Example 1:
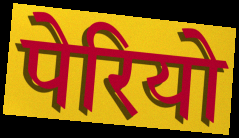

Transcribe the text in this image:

पेरियो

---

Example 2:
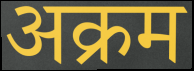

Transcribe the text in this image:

अक्रम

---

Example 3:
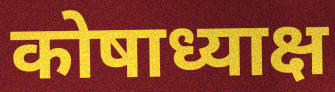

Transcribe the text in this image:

कोषाध्याक्ष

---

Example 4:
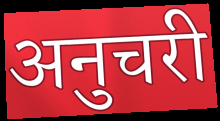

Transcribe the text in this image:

अनुचरी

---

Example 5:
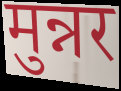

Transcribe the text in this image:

मुन्नर